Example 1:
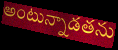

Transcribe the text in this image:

అంటున్నాడతను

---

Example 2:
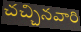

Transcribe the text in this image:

చచ్చినవారి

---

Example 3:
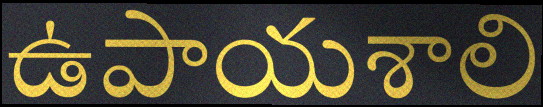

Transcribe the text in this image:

ఉపాయశాలి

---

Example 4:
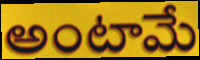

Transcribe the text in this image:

అంటామే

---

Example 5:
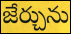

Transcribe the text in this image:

జేర్చును